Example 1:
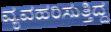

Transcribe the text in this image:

ವ್ಯವಹರಿಸುತ್ತಿದ್ದ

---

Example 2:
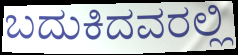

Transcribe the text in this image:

ಬದುಕಿದವರಲ್ಲಿ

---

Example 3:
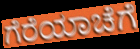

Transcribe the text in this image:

ಗೆರೆಯಾಚೆಗೆ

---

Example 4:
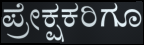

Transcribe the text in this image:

ಪ್ರೇಕ್ಷಕರಿಗೂ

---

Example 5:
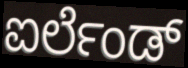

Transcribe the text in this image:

ಐರ್ಲೆಂಡ್